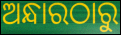
ଅନ୍ଧାରଠାରୁ